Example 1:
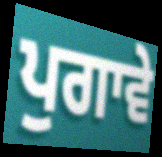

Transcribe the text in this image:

ਪੁਗਾਵੇ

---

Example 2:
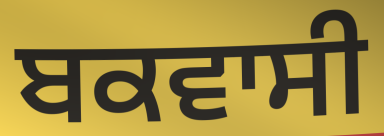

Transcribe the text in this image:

ਬਕਵਾਸੀ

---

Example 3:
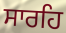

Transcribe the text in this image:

ਸਾਰਹਿ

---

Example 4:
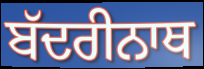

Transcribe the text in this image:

ਬੱਦਰੀਨਾਥ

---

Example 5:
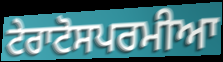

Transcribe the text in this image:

ਟੇਰਾਟੋਸਪਰਮੀਆ